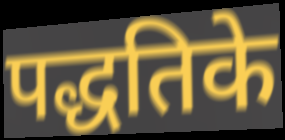
पद्धतिके